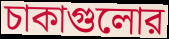
চাকাগুলোর